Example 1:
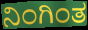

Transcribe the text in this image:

ನಿಂಗಿಂತ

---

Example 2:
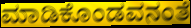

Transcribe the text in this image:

ಮಾಡಿಕೊಂಡವನಂತೆ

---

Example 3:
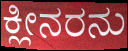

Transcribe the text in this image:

ಕ್ಲೀನರನು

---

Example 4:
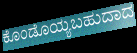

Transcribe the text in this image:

ಕೊಂಡೊಯ್ಯಬಹುದಾದ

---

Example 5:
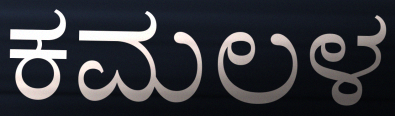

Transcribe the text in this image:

ಕಮಲಳ